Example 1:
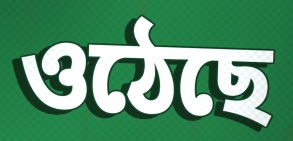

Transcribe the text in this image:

ওঠেছে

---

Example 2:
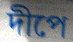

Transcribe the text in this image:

দীপে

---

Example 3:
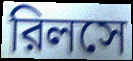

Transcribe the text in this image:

রিলসে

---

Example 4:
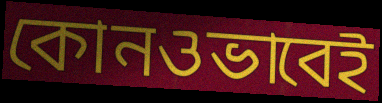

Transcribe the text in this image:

কোনওভাবেই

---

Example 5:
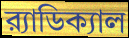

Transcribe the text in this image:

র‍্যাডিক্যাল